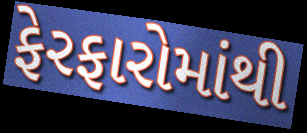
ફેરફારોમાંથી